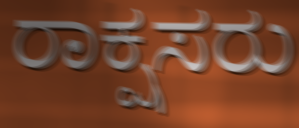
ರಾಕ್ಷಸರು